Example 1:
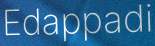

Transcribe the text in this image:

Edappadi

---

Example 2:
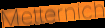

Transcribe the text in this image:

Metternich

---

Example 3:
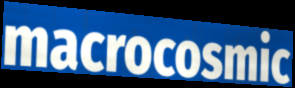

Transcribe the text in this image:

macrocosmic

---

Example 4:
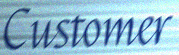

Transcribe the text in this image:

Customer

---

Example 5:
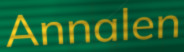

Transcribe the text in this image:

Annalen